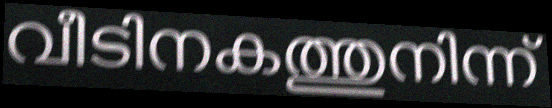
വീടിനകത്തുനിന്ന്